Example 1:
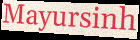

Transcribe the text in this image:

Mayursinh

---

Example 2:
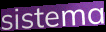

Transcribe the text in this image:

sistema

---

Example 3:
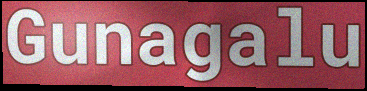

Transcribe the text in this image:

Gunagalu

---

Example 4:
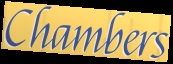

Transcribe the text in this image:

Chambers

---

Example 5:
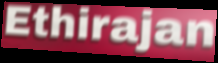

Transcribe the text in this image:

Ethirajan